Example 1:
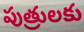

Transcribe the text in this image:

పుత్రులకు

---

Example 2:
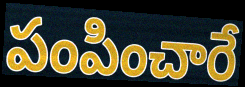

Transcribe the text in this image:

పంపించారే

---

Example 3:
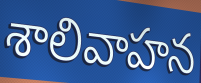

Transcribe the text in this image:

శాలివాహన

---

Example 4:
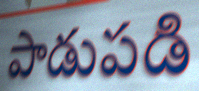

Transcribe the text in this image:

పాడుపడి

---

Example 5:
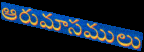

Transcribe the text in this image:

ఆరుమాసములు